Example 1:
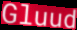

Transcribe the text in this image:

Gluud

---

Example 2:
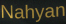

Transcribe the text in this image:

Nahyan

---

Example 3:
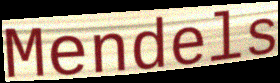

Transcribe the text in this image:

Mendels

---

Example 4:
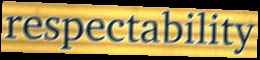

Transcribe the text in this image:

respectability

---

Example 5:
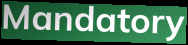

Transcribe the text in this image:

Mandatory